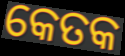
କେତକ